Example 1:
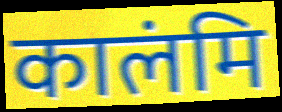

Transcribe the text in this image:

कालंमि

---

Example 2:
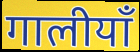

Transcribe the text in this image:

गालीयाँ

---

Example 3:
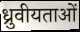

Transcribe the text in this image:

ध्रुवीयताओं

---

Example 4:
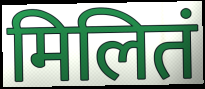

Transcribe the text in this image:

मिलितं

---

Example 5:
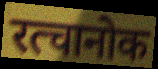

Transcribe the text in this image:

रत्चानोक